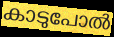
കാടുപോൽ